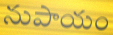
నుపాయం